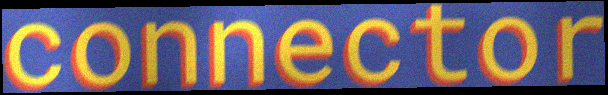
connector